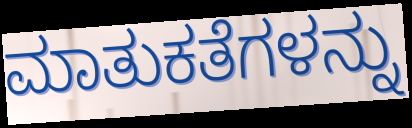
ಮಾತುಕತೆಗಳನ್ನು